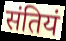
संतियं